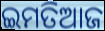
ଇମତିଆଜ